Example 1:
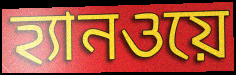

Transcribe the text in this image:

হ্যানওয়ে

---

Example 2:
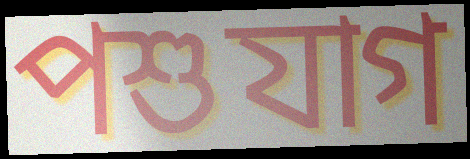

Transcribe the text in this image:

পশুযাগ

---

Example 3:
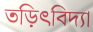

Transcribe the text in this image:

তড়িৎবিদ্যা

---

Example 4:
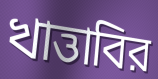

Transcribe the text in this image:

খাত্তাবির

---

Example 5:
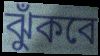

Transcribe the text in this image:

ঝুঁকবে